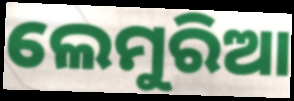
ଲେମୁରିଆ